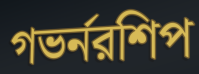
গভর্নরশিপ